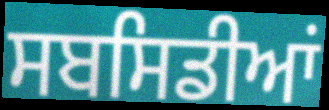
ਸਬਸਿਡੀਆਂ